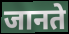
जानते